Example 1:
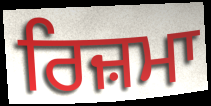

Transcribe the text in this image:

ਰਿਜ਼ਮਾ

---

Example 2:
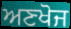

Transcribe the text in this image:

ਅਣਖੋਜ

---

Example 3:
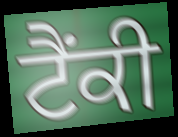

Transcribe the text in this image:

ਟੈਂਕੀ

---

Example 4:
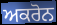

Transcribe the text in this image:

ਅਕਰੋਨ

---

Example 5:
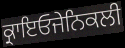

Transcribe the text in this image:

ਕ੍ਰਾਇਓਜੇਨਿਕਲੀ